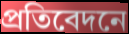
প্ৰতিবেদনে